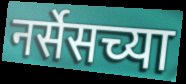
नर्सेसच्या